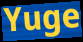
Yuge